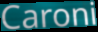
Caroni